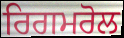
ਰਿਗਮਰੋਲ